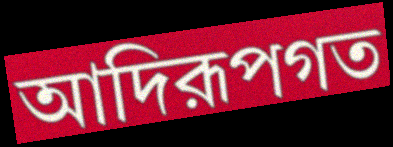
আদিরূপগত